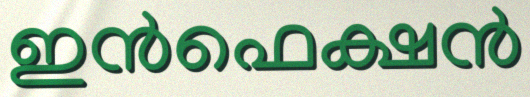
ഇൻഫെക്ഷൻ